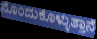
ನೊಂದುಕೊಳ್ಳುತ್ತಾನೆ